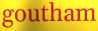
goutham